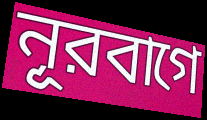
নূরবাগে